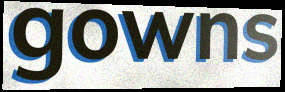
gowns